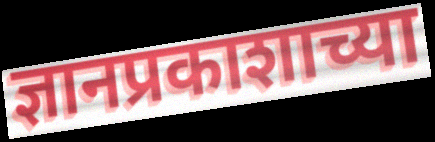
ज्ञानप्रकाशाच्या